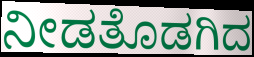
ನೀಡತೊಡಗಿದ